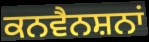
ਕਨਵੈਨਸ਼ਨਾਂ